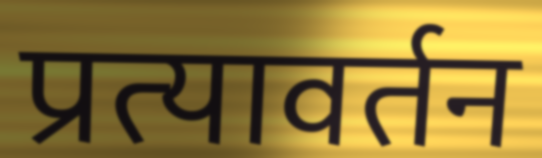
प्रत्‍यावर्तन